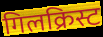
गिलक्रिस्‍ट